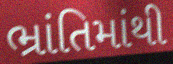
ભ્રાંતિમાંથી